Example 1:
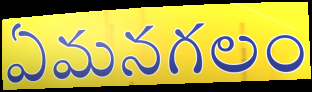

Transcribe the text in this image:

ఏమనగలం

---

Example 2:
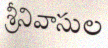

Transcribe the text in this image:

శ్రీనివాసుల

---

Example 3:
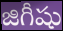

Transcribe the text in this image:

జిగీషు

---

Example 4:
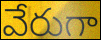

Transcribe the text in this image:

వేరుగా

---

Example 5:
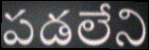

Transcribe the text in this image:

పడలేని